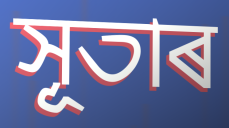
সূতাৰ